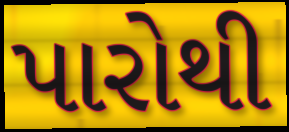
પારોથી